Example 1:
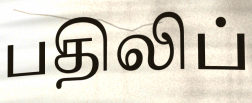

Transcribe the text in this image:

பதிலிப்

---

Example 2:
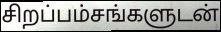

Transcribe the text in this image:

சிறப்பம்சங்களுடன்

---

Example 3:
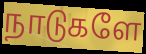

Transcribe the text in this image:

நாடுகளே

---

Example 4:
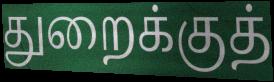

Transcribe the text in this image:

துறைக்குத்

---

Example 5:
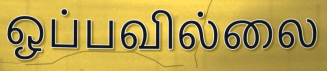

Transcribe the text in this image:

ஒப்பவில்லை